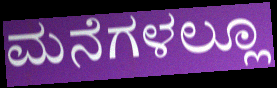
ಮನೆಗಳಲ್ಲೂ